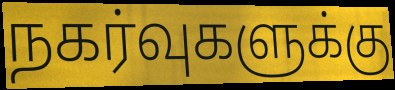
நகர்வுகளுக்கு